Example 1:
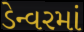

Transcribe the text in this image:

ડેન્વરમાં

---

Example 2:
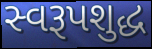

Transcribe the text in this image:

સ્વરૂપશુદ્ધ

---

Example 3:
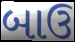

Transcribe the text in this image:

બાઉ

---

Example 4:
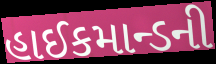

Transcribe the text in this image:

હાઈકમાન્ડની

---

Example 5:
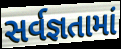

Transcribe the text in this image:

સર્વજ્ઞતામાં